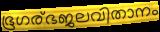
ഭൂഗര്ഭജലവിതാനം